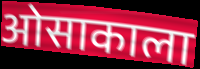
ओसाकाला